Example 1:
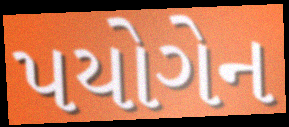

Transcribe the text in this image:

પયોગેન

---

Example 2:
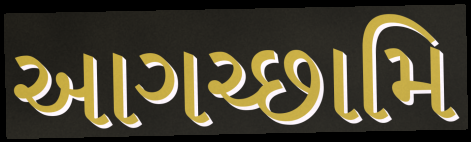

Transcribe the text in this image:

આગચ્છામિ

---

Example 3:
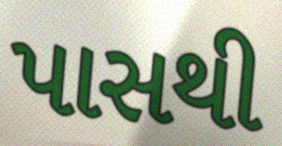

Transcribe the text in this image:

પાસથી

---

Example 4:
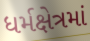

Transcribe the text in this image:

ધર્મક્ષેત્રમાં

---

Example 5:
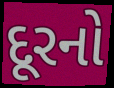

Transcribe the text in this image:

દૂરનો